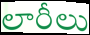
లారీలు